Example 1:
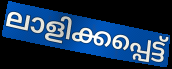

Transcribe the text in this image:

ലാളിക്കപ്പെട്ട്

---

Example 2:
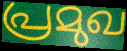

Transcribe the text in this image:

പ്രമുഖ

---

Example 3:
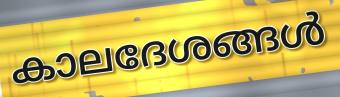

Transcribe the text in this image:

കാലദേശങ്ങൾ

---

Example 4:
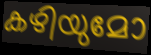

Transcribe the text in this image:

കഴിയുമോ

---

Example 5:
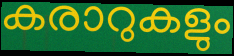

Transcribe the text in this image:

കരാറുകളും